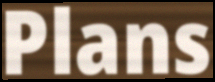
Plans